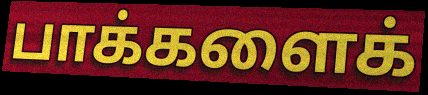
பாக்களைக்